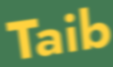
Taib